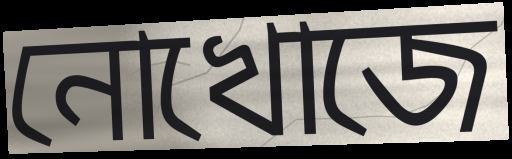
নোখোজে